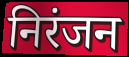
निरंजन